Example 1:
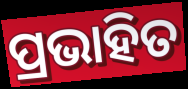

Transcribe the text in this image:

ପ୍ରଭାହିତ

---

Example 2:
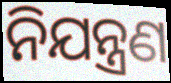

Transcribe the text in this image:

ନିଯନ୍ତ୍ରଣ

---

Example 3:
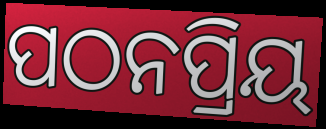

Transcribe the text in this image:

ପଠନପ୍ରିୟ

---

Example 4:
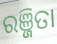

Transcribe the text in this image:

ରଞ୍ଜିତା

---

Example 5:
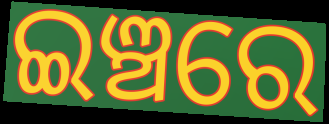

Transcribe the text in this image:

ଇଞ୍ଚରେ